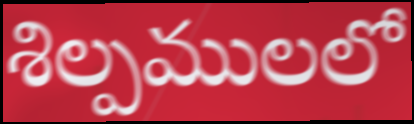
శిల్పములలో